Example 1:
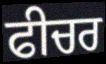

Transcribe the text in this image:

ਫੀਚਰ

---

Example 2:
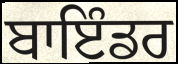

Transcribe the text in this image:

ਬਾਇੰਡਰ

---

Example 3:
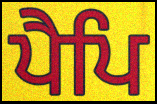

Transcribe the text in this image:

ਪੈਪਿ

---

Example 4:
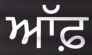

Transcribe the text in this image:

ਆੱਫ਼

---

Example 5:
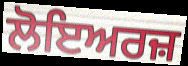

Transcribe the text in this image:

ਲੋਇਅਰਜ਼